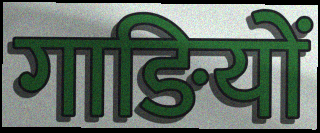
गाङियों